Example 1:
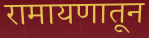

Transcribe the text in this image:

रामायणातून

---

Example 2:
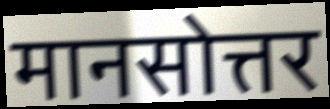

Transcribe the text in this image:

मानसोत्तर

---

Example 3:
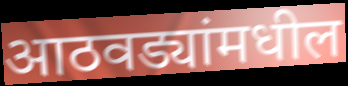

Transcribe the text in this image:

आठवड्यांमधील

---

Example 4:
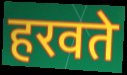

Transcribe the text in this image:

हरवते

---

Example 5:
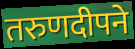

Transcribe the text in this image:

तरुणदीपने